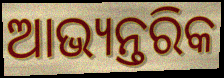
ଆଭ୍ୟନ୍ତରିକ